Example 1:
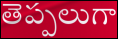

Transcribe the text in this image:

తెప్పలుగా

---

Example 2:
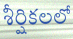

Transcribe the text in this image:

శీర్షికలలో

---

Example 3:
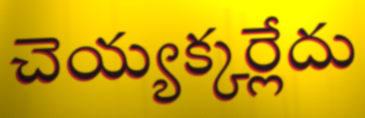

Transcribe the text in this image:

చెయ్యక్కర్లేదు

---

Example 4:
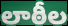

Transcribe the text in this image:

లాఠీల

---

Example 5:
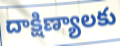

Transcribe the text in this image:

దాక్షిణ్యాలకు